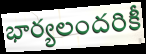
భార్యలందరికీ